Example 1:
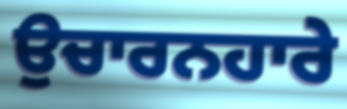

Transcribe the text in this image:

ਉਚਾਰਨਹਾਰੇ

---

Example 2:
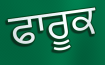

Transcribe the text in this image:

ਫਾਰੂਕ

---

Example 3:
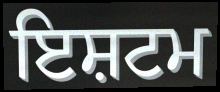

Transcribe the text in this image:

ਇਸ਼ਟਮ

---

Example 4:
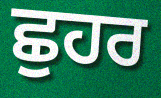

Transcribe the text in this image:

ਛੁਹਰ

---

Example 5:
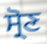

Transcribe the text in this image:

ਸ੍ਰੋਣ